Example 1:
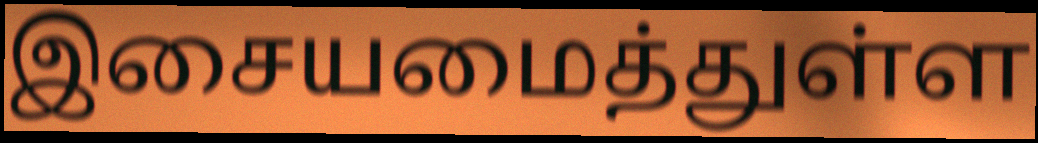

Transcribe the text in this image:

இசையமைத்துள்ள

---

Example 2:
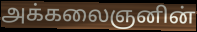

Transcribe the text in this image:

அக்கலைஞனின்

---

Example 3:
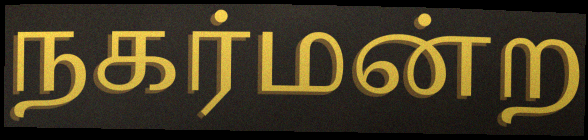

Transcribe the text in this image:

நகர்மன்ற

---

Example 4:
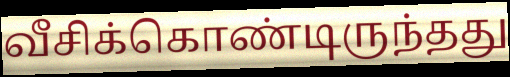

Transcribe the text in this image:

வீசிக்கொண்டிருந்தது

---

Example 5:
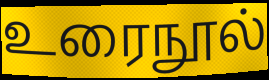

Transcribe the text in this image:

உரைநூல்